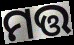
ମତ୍ତ